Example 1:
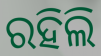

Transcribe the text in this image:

ରହିଲି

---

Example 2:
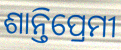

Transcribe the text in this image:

ଶାନ୍ତିପ୍ରେମୀ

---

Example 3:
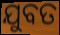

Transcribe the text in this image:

ଯୁବତ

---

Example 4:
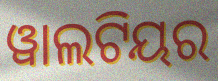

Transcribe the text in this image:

ୱାଲଟିୟର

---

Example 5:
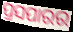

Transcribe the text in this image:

ପ୍ରସପାରର